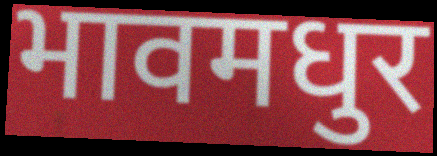
भावमधुर